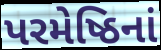
પરમેષ્ઠિનાં